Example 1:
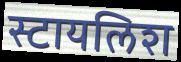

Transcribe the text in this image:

स्टायलिश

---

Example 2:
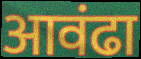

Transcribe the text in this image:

आवंढा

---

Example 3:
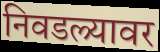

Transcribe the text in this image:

निवडल्यावर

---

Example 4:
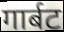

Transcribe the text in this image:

गार्बट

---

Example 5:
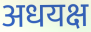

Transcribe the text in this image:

अधयक्ष